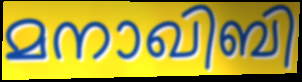
മനാഖിബി